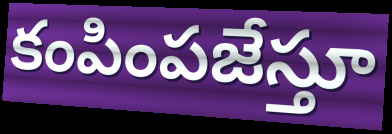
కంపింపజేస్తూ